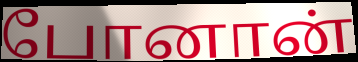
போனான்